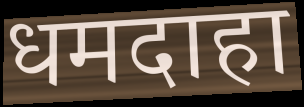
धमदाहा